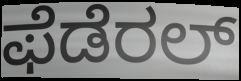
ಫೆಡೆರಲ್